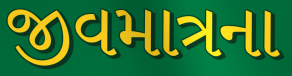
જીવમાત્રના